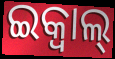
ଇକ୍ବାଲ୍